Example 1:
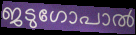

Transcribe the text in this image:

ജടുഗോപാൽ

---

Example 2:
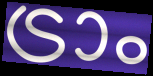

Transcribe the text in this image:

ട്രാം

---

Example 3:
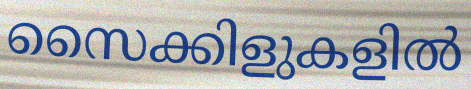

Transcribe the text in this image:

സൈക്കിളുകളിൽ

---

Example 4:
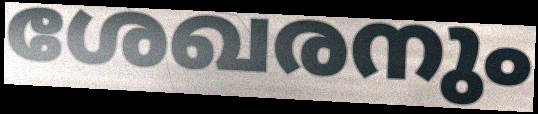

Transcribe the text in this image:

ശേഖരനും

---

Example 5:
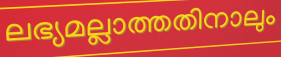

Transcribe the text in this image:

ലഭ്യമല്ലാത്തതിനാലും